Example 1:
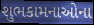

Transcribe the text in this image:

શુભકામનાઓના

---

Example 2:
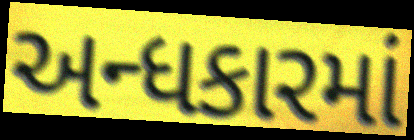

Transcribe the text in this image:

અન્ધકારમાં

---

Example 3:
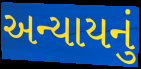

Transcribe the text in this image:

અન્યાયનું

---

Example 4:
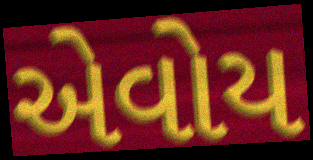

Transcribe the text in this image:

એવોય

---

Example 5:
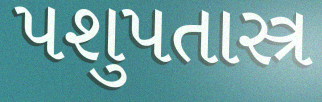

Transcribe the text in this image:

પશુપતાસ્ત્ર